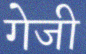
गेजी